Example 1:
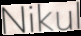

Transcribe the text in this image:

Nikul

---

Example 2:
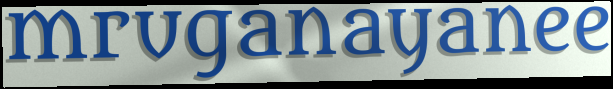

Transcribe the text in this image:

mruganayanee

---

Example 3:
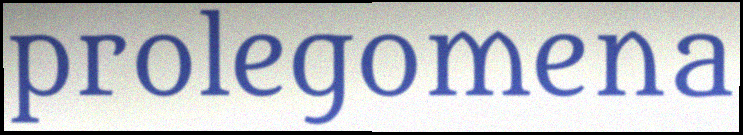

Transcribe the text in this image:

prolegomena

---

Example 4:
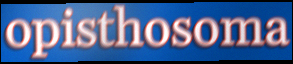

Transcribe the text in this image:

opisthosoma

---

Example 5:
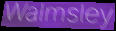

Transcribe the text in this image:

Walmsley